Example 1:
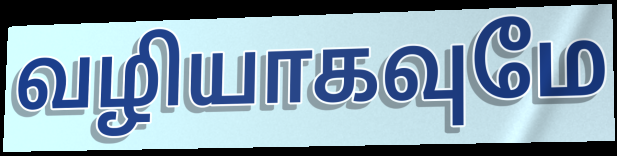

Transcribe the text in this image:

வழியாகவுமே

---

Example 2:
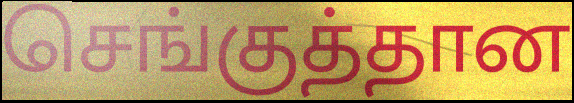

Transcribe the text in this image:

செங்குத்தான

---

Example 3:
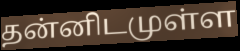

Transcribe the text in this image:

தன்னிடமுள்ள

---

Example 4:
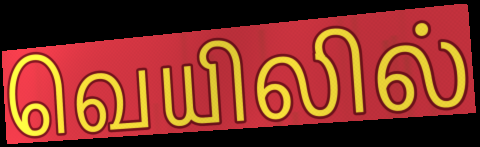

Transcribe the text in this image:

வெயிலில்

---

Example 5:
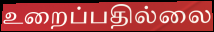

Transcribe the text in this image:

உறைப்பதில்லை